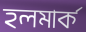
হলমার্ক